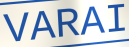
VARAI